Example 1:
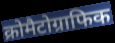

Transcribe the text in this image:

क्रोमैटोग्राफिक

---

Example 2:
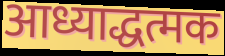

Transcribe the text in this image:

आध्याद्धत्मक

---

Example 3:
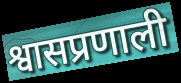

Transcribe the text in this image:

श्वासप्रणाली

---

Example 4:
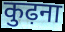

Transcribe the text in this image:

कुढ़ना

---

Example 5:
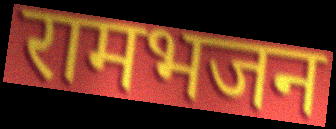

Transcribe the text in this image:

रामभजन